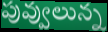
పువ్వులున్న